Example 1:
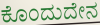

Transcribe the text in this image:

ಕೊಂದುದೇನ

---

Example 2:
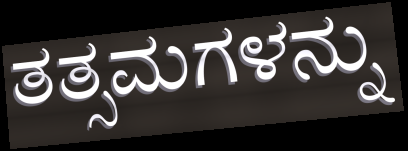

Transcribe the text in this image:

ತತ್ಸಮಗಳನ್ನು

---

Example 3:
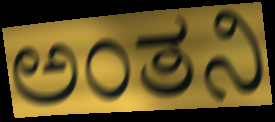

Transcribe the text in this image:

ಅಂತನಿ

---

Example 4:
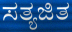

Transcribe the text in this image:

ಸತ್ಯಜಿತ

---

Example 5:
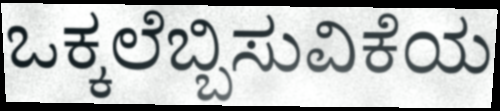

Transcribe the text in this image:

ಒಕ್ಕಲೆಬ್ಬಿಸುವಿಕೆಯ